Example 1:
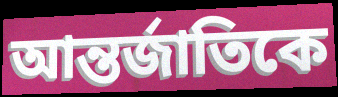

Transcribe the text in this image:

আন্তর্জাতিকে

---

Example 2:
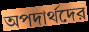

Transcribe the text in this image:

অপদার্থদের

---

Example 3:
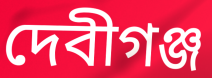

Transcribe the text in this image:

দেবীগঞ্জ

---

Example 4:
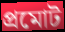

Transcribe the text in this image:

প্রমোট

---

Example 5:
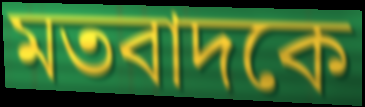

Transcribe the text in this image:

মতবাদকে